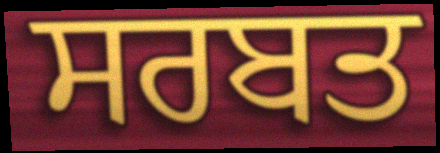
ਸਰਬਤ